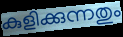
കുളിക്കുന്നതും